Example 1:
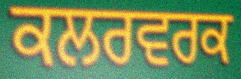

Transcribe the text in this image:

ਕਲਰਵਰਕ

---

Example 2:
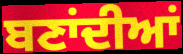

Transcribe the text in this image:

ਬਣਾਂਦੀਆਂ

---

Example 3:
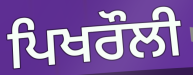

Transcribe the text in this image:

ਪਿਖਰੌਲੀ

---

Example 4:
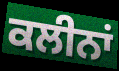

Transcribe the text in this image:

ਕਲੀਨਾਂ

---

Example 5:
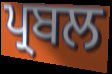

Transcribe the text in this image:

ਪ੍ਰਬਲ